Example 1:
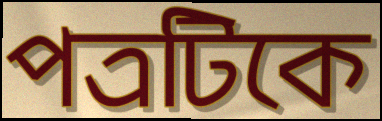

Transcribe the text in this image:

পত্রটিকে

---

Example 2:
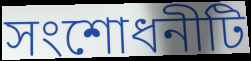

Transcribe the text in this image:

সংশোধনীটি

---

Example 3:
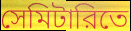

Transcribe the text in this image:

সেমিটারিতে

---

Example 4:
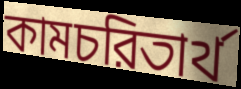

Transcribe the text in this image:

কামচরিতার্থ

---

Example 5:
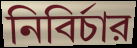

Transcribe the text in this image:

নিবির্চার